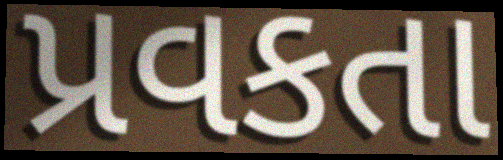
પ્રવકતા